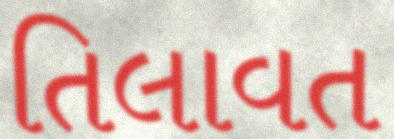
તિલાવત